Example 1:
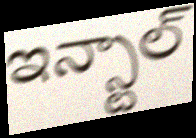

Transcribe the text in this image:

ఇన్స్టాల్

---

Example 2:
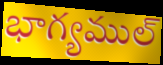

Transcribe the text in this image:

భాగ్యముల్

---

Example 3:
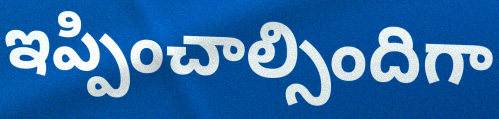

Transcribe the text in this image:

ఇప్పించాల్సిందిగా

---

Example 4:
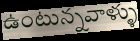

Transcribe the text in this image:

ఉంటున్నవాళ్ళు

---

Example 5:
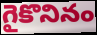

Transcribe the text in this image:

గైకొనినం